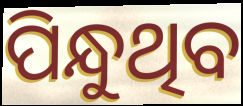
ପିନ୍ଧୁଥିବ